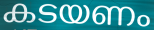
കടയണം